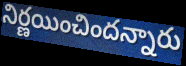
నిర్ణయించిందన్నారు